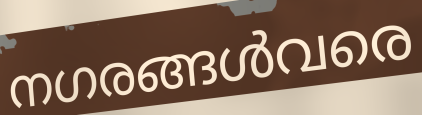
നഗരങ്ങൾവരെ